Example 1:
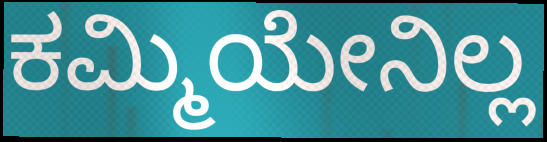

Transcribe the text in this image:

ಕಮ್ಮಿಯೇನಿಲ್ಲ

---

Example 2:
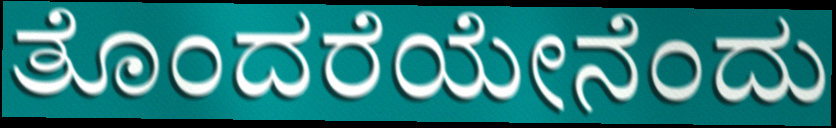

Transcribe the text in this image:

ತೊಂದರೆಯೇನೆಂದು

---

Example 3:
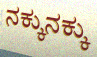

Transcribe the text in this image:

ನಕ್ಕುನಕ್ಕು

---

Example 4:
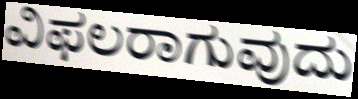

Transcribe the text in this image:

ವಿಫಲರಾಗುವುದು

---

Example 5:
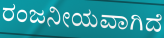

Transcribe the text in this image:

ರಂಜನೀಯವಾಗಿದೆ